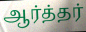
ஆர்த்தர்